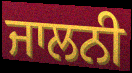
ਜਾਲਨੀ